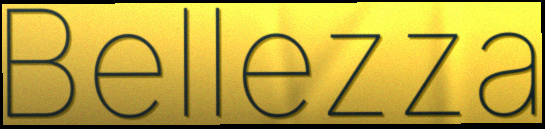
Bellezza